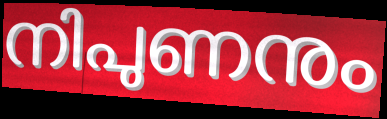
നിപുണനും